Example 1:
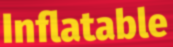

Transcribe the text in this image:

Inflatable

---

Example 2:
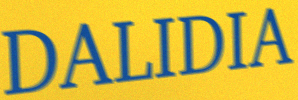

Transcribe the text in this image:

DALIDIA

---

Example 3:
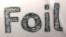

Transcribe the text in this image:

Foil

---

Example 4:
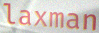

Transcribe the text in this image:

laxman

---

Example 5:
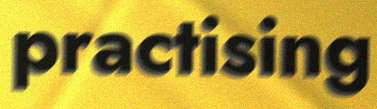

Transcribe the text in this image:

practising